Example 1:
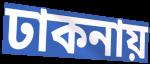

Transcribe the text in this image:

ঢাকনায়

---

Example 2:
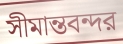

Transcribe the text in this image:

সীমান্তবন্দর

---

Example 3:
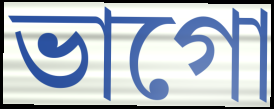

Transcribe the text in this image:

ভাগো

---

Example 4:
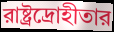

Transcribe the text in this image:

রাষ্ট্রদ্রোহীতার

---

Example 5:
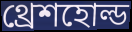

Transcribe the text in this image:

থ্রেশহোল্ড